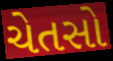
ચેતસો